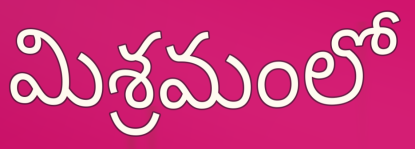
మిశ్రమంలో